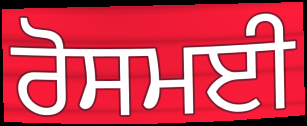
ਰੋਸਮਈ